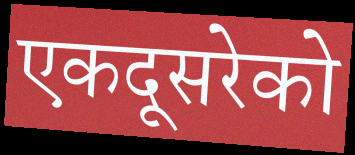
एकदूसरेको